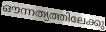
ഔന്നത്യത്തിലേക്കു